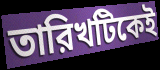
তারিখটিকেই